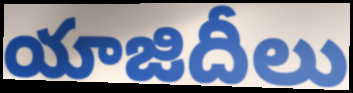
యాజిదీలు